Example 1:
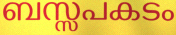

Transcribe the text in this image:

ബസ്സപകടം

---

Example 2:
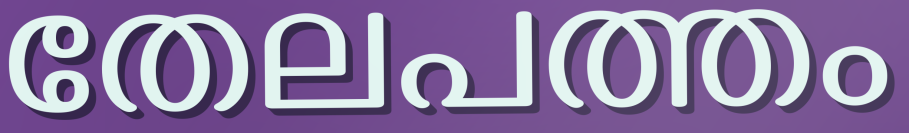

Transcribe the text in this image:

തേലപത്തം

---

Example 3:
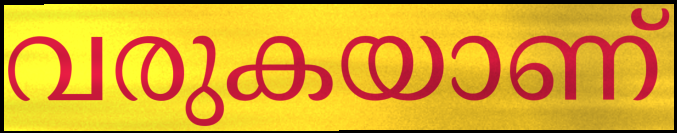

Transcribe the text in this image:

വരുകയാണ്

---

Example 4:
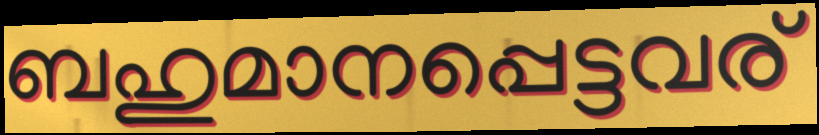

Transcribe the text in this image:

ബഹുമാനപ്പെട്ടവര്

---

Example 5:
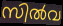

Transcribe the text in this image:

സിൽവ